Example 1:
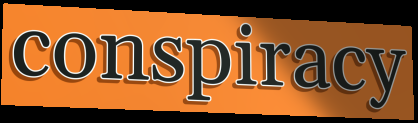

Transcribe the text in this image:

conspiracy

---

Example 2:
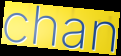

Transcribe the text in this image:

chan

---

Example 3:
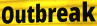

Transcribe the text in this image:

Outbreak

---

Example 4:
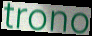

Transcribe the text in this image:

trono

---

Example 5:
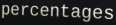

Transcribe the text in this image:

percentages